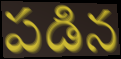
పడిన